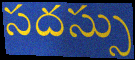
సదస్సు